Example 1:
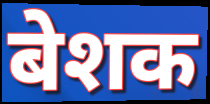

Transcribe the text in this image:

बेशक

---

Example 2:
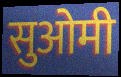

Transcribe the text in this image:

सुओमी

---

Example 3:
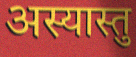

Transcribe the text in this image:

अस्यास्तु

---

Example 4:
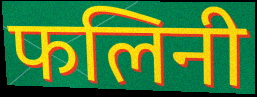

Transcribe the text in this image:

फलिनी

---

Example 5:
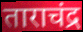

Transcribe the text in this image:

ताराचंद्र